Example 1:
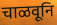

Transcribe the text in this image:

चाळवूनि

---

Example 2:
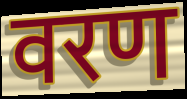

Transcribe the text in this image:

वरण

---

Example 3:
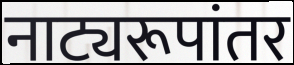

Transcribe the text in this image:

नाट्यरूपांतर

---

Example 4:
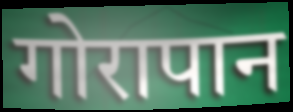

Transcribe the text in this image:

गोरापान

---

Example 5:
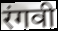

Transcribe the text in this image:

रंगवी